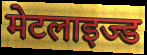
मेटलाइज्ड